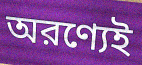
অরণ্যেই